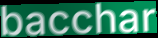
bacchar